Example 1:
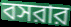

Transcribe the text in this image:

বসরার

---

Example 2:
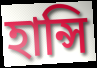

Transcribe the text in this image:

হান্সি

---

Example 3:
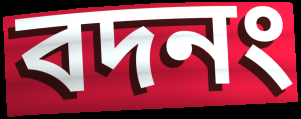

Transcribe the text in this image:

বদনং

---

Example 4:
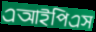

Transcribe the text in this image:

এআইপিএস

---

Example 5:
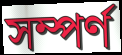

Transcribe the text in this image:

সম্পর্ণ